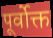
पूर्वोक्त